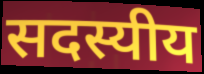
सदस्यीय